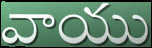
వాయు